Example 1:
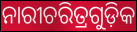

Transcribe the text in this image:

ନାରୀଚରିତ୍ରଗୁଡ଼ିକ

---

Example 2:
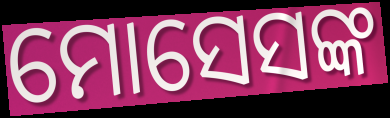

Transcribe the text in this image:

ମୋସେସଙ୍କ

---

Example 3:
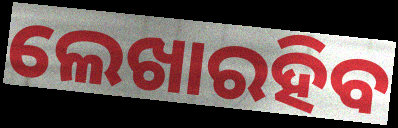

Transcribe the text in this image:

ଲେଖାରହିବ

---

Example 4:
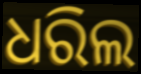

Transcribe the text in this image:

ଧରିଲ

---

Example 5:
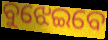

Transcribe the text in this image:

ବୁଝେଇବେ